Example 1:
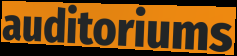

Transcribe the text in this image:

auditoriums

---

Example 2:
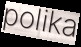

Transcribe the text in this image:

polika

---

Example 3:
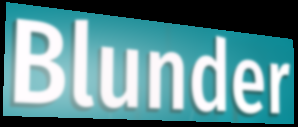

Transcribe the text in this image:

Blunder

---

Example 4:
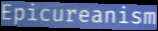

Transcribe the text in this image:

Epicureanism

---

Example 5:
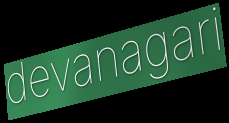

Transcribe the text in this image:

devanagari